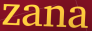
zana